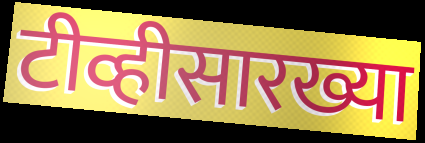
टीव्हीसारख्या